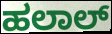
ಹಲಾಲ್